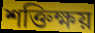
শক্তিক্ষয়